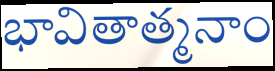
భావితాత్మనాం